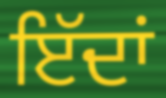
ਇੱਦਾਂ